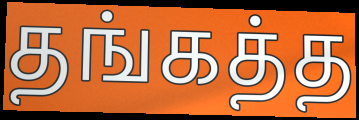
தங்கத்த